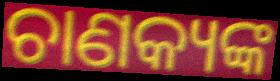
ଚାଣକ୍ୟଙ୍କ